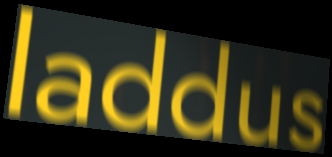
laddus